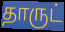
தாருட்